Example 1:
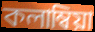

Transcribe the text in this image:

কলাম্বিয়া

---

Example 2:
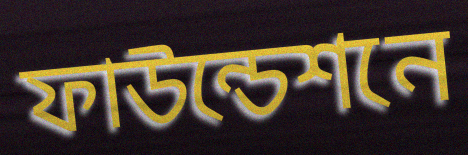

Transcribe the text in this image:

ফাউন্ডেশনে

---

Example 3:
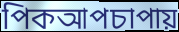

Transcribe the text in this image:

পিকআপচাপায়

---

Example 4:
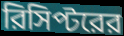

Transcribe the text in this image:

রিসিপ্টরের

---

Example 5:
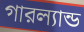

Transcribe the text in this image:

গারল্যান্ড